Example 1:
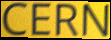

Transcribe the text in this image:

CERN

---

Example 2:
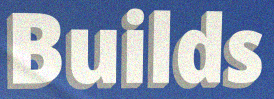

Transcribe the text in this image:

Builds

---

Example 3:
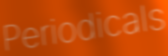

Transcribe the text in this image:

Periodicals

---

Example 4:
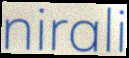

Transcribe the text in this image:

nirali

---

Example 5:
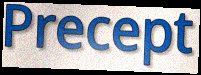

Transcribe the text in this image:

Precept